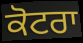
ਕੋਟਰਾ